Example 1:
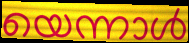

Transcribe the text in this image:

യെന്നാൾ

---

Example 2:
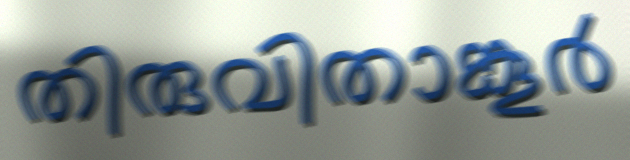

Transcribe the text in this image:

തിരുവിതാങ്കൂർ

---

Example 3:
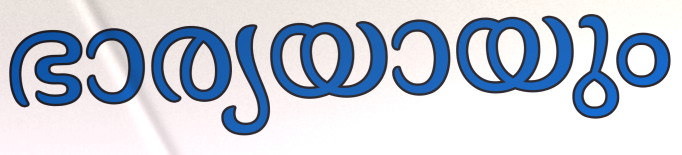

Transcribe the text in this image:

ഭാര്യയായും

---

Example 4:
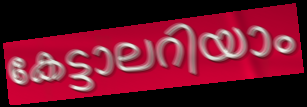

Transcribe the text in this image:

കേട്ടാലറിയാം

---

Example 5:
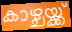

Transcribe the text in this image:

കാഴ്ചയ്ക്ക്